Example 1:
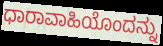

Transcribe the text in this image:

ಧಾರಾವಾಹಿಯೊಂದನ್ನು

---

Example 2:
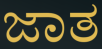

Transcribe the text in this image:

ಜಾತ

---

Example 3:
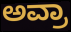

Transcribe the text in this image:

ಅವ್ರಾ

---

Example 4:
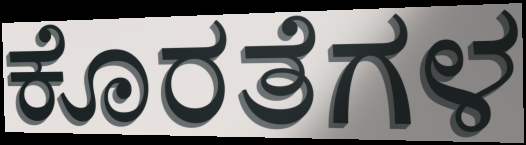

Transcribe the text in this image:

ಕೊರತೆಗಳ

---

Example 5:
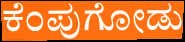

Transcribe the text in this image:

ಕೆಂಪುಗೋಡು